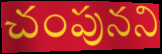
చంపునని